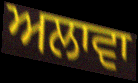
ਅਲਾਵਾ